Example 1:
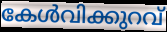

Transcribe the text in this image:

കേൾവിക്കുറവ്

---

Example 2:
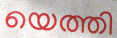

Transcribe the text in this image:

യെത്തി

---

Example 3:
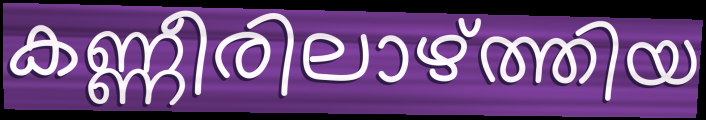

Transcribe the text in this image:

കണ്ണീരിലാഴ്ത്തിയ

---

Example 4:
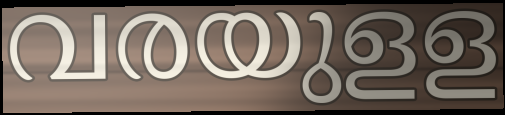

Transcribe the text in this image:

വരയുളള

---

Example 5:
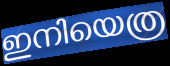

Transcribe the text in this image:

ഇനിയെത്ര